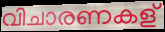
വിചാരണകള്